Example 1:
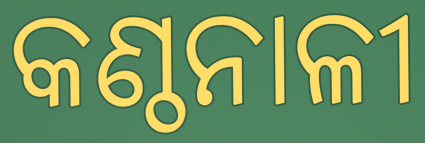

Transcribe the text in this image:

କଣ୍ଠନାଳୀ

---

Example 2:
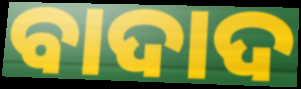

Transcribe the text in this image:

ବାଦାଦ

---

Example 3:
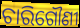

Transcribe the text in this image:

ଚାରିଗୌଣୀ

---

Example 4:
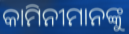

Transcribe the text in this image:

କାମିନୀମାନଙ୍କୁ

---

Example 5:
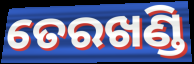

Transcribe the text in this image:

ତେରଖଣ୍ଡି